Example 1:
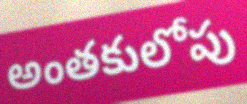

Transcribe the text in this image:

అంతకులోపు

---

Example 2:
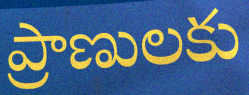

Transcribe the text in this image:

ప్రాణులకు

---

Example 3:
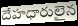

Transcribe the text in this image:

దేహధారులైన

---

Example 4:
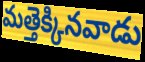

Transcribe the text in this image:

మత్తెక్కినవాడు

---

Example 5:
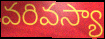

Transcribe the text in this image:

వరివస్యా